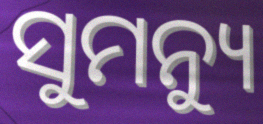
ସୁମନ୍ୟୁ